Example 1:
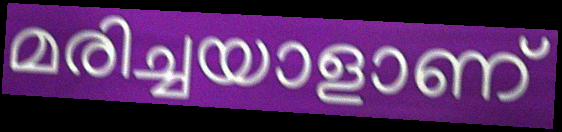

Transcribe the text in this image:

മരിച്ചയാളാണ്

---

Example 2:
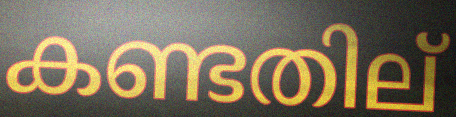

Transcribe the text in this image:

കണ്ടതില്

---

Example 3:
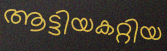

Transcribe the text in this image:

ആട്ടിയകറ്റിയ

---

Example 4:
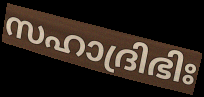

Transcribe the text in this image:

സഹാദ്രിഭിഃ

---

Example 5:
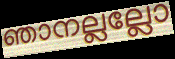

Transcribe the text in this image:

ഞാനല്ലല്ലോ